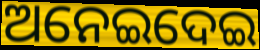
ଅନେଇଦେଇ